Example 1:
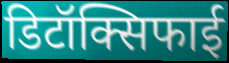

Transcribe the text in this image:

डिटॉक्सिफाई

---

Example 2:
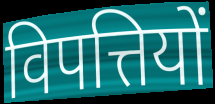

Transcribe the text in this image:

विपत्तियों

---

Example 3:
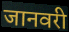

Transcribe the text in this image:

जानवरी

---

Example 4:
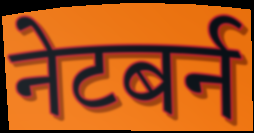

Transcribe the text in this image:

नेटबर्न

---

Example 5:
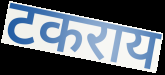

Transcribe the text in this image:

टकराय